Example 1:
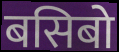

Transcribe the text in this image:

बसिबो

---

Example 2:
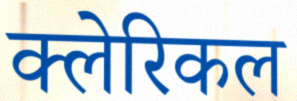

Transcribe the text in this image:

क्लेरिकल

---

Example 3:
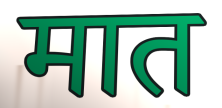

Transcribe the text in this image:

मात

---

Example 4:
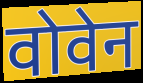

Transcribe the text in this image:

वोवेन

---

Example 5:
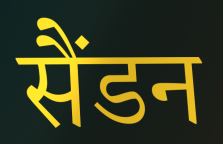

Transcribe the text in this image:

सैंडन